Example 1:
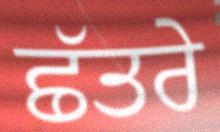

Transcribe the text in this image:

ਛੱਤਰੇ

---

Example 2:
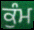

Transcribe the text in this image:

ਕੁੰਮ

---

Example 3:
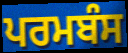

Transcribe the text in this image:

ਪਰਮਬੰਸ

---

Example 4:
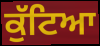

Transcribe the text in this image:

ਕੁੱਟਿਆ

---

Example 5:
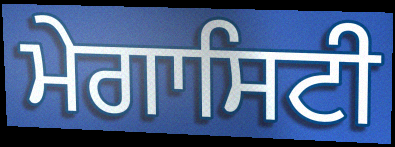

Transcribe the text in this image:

ਮੇਗਾਸਿਟੀ